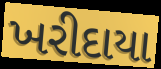
ખરીદાયા